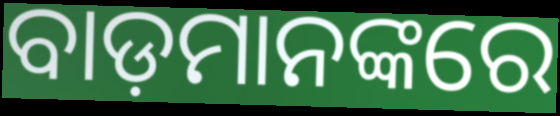
ବାଡ଼ମାନଙ୍କରେ